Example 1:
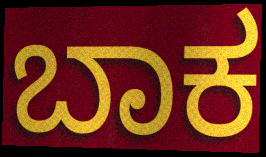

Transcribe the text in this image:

ಬಾಕ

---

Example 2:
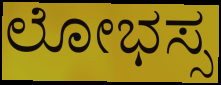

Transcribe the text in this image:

ಲೋಭಸ್ಸ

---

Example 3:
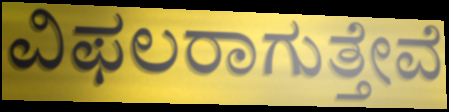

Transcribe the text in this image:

ವಿಫಲರಾಗುತ್ತೇವೆ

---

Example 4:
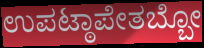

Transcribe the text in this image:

ಉಪಟ್ಠಾಪೇತಬ್ಬೋ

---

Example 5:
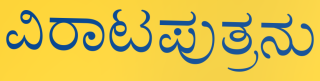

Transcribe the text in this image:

ವಿರಾಟಪುತ್ರನು